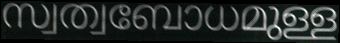
സ്വത്വബോധമുള്ള